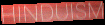
HINDUISM